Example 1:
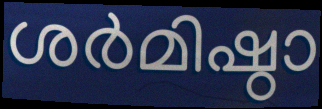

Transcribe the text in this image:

ശർമിഷ്ഠാ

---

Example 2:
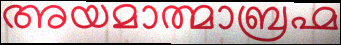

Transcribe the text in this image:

അയമാത്മാബ്രഹ്മ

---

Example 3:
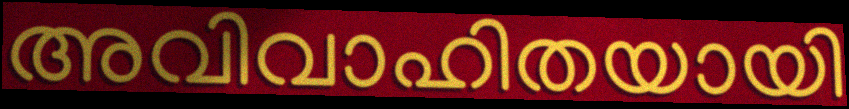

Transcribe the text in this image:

അവിവാഹിതയായി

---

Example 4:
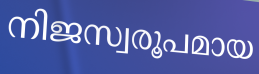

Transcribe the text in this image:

നിജസ്വരൂപമായ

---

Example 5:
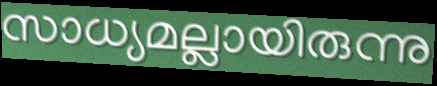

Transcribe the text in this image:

സാധ്യമല്ലായിരുന്നു